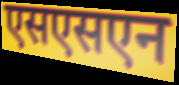
एसएसएन